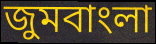
জুমবাংলা